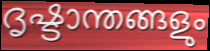
ദൃഷ്ടാന്തങ്ങളും